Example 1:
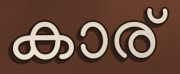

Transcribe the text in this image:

കാര്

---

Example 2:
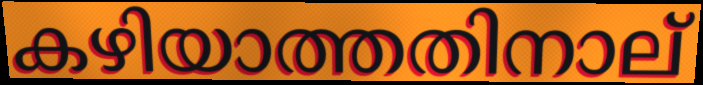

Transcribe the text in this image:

കഴിയാത്തതിനാല്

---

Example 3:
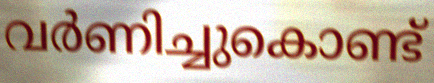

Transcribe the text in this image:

വർണിച്ചുകൊണ്ട്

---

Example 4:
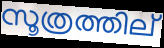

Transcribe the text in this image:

സൂത്രത്തില്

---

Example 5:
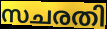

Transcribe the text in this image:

സചരതി